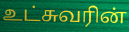
உட்சுவரின்